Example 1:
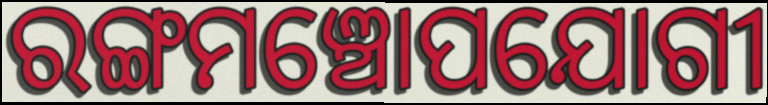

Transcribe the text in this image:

ରଙ୍ଗମଞ୍ଚୋପଯୋଗୀ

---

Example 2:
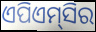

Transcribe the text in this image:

ଏପିଏମ୍‌ସିର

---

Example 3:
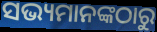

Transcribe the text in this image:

ସଭ୍ୟମାନଙ୍କଠାରୁ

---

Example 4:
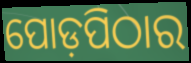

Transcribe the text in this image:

ପୋଡ଼ପିଠାର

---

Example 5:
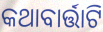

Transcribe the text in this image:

କଥାବାର୍ତ୍ତାଟି